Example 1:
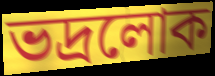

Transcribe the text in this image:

ভদ্রলোক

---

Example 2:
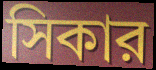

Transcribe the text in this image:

সিকার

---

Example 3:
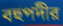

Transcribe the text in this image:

বহুপদীর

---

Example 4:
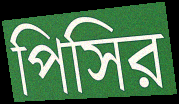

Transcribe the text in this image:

পিসির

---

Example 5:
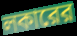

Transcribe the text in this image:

লকারের